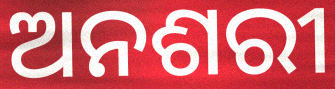
ଅନଶରୀ